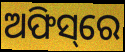
ଅଫିସ୍‌ରେ